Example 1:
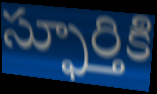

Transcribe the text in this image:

స్ఫూర్తికి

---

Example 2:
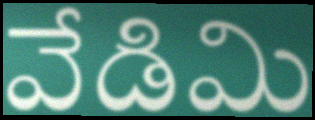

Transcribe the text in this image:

వేడిమి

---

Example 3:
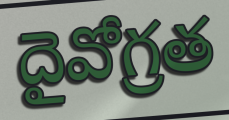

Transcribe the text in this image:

దైవోగ్రత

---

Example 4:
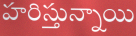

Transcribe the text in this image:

హరిస్తున్నాయి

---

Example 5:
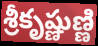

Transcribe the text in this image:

శ్రీకృష్ణుణ్ణి